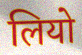
लियो